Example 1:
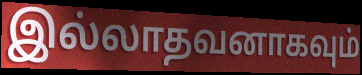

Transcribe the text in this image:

இல்லாதவனாகவும்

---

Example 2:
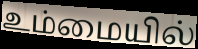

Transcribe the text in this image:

உம்மையில்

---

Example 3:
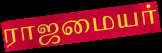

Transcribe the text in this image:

ராஜமையர்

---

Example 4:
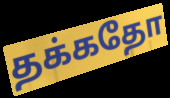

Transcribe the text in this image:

தக்கதோ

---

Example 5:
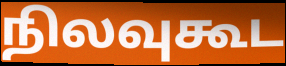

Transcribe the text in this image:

நிலவுகூட